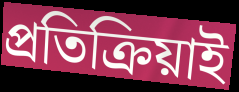
প্রতিক্রিয়াই